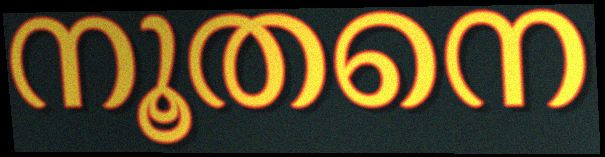
നൂതനെ